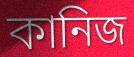
কানিজ